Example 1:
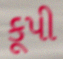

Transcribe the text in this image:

કૂપી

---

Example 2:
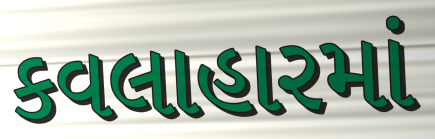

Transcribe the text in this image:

કવલાહારમાં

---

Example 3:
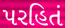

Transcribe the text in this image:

પરહિતં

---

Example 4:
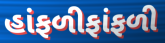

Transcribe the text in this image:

હાંફળીફાંફળી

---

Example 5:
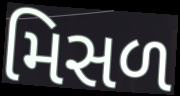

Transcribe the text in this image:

મિસળ